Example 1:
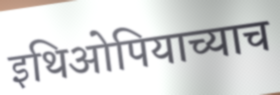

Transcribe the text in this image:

इथिओपियाच्याच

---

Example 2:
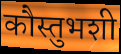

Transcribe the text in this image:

कौस्तुभशी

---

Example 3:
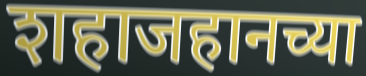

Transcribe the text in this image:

शहाजहानच्या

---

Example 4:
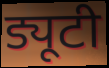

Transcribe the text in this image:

ड्यूटी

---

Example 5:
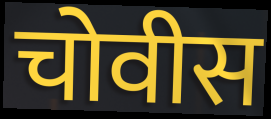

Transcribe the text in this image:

चोवीस